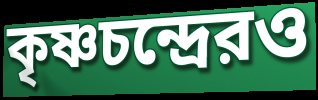
কৃষ্ণচন্দ্রেরও